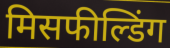
मिसफील्डिंग